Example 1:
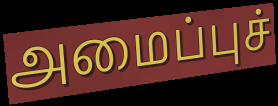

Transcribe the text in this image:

அமைப்புச்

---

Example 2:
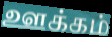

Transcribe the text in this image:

ஊக்கம்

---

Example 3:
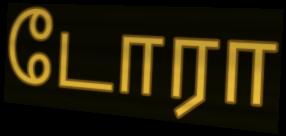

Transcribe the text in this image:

டோரா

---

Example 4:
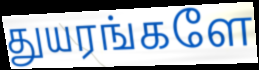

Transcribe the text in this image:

துயரங்களே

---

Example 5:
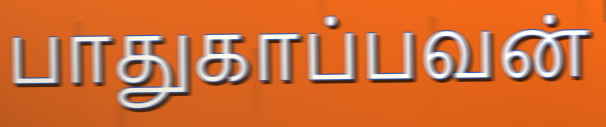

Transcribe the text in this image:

பாதுகாப்பவன்